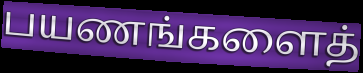
பயணங்களைத்